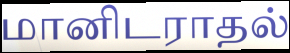
மானிடராதல்